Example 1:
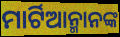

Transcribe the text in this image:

ମାର୍ଟିଆନ୍ମାନଙ୍କ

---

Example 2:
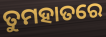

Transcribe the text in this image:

ତୁମହାତରେ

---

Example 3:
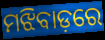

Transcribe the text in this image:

ମଝିବାଡ଼ରେ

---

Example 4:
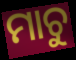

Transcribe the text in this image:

ମାଚୁ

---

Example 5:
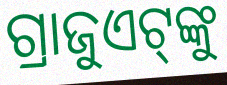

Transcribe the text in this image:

ଗ୍ରାଜୁଏଟ୍‌ଙ୍କୁ